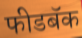
फीडबॅक